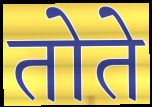
तोते